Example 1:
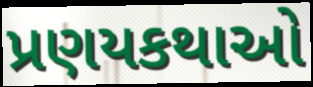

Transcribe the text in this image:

પ્રણયકથાઓ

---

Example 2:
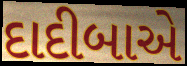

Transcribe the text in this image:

દાદીબાએ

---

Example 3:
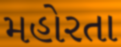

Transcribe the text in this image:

મહોરતા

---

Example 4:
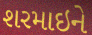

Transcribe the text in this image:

શરમાઇને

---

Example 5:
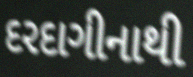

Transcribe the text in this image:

દરદાગીનાથી